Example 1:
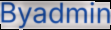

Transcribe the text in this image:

Byadmin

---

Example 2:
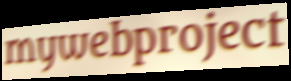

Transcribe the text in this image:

mywebproject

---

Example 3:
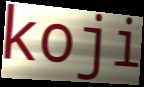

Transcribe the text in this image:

koji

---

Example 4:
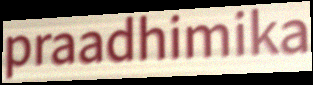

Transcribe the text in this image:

praadhimika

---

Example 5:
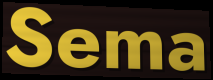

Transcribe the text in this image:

Sema